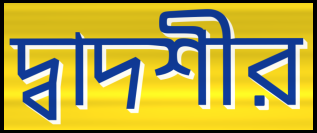
দ্বাদশীর